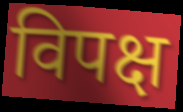
विपक्ष